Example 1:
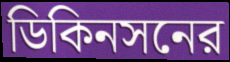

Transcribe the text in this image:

ডিকিনসনের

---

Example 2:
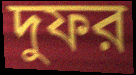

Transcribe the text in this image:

দুফর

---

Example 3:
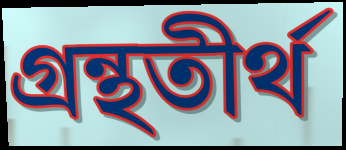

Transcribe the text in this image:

গ্রন্থতীর্থ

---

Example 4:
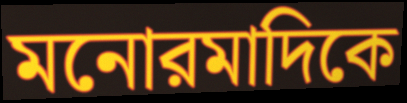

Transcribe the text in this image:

মনোরমাদিকে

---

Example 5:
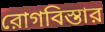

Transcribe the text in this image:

রোগবিস্তার